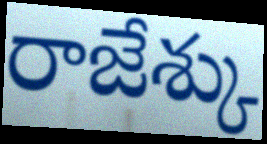
రాజేశ్కు